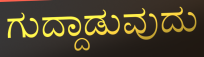
ಗುದ್ದಾಡುವುದು